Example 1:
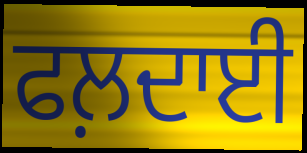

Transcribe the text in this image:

ਫਲ਼ਦਾਈ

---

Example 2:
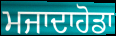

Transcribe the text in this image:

ਮਜਾਦਾਹੋਡਾ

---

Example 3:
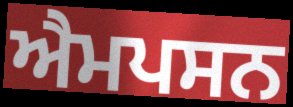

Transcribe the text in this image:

ਐਮਪਸਨ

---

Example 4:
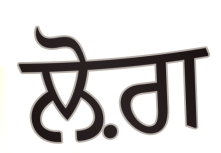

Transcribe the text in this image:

ਲ਼ੋਗ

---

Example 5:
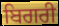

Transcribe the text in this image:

ਬਿਗਰੀ